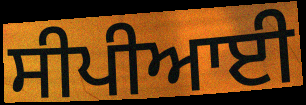
ਸੀਪੀਆਈ